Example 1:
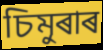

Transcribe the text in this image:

চিমুৰাৰ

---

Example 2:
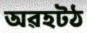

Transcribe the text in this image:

অৱহটঠ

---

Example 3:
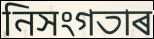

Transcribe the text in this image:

নিসংগতাৰ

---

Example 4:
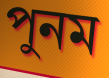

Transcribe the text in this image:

পুনম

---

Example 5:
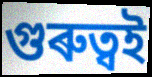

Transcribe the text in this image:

গুৰুত্বই